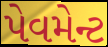
પેવમેન્ટ